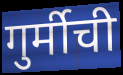
गुर्मीची